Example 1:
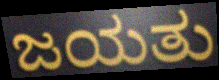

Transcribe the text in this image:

ಜಯತು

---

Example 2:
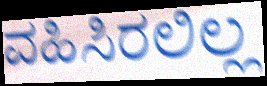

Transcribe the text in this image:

ವಹಿಸಿರಲಿಲ್ಲ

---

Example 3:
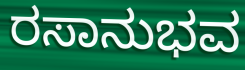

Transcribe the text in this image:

ರಸಾನುಭವ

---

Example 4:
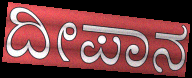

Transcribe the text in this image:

ದೀಪಾನ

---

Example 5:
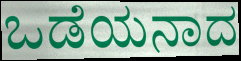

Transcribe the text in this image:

ಒಡೆಯನಾದ